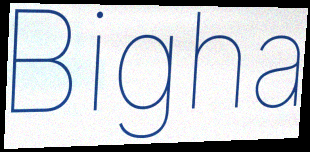
Bigha